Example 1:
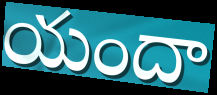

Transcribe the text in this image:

యందా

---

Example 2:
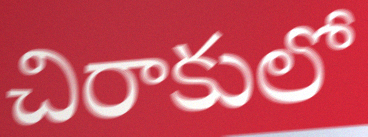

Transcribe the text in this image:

చిరాకులో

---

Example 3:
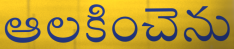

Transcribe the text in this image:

ఆలకించెను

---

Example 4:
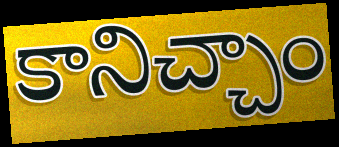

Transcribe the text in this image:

కానిచ్చాం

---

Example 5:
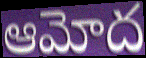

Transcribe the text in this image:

ఆమోద